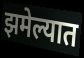
झमेल्यात